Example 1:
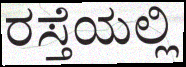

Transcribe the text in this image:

ರಸ್ತೆಯಲ್ಲಿ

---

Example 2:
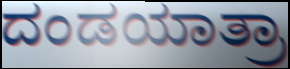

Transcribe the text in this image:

ದಂಡಯಾತ್ರಾ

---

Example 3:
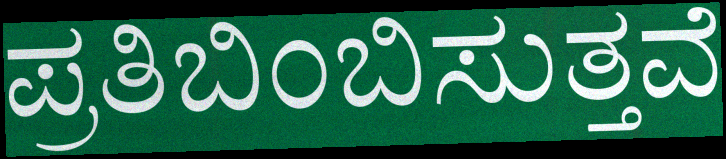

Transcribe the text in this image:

ಪ್ರತಿಬಿಂಬಿಸುತ್ತವೆ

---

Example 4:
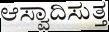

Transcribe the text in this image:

ಆಸ್ವಾದಿಸುತ್ತ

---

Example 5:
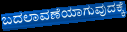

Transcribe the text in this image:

ಬದಲಾವಣೆಯಾಗುವುದಕ್ಕೆ